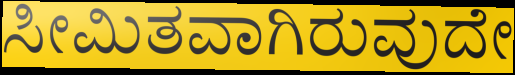
ಸೀಮಿತವಾಗಿರುವುದೇ